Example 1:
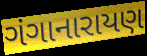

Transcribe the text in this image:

ગંગાનારાયણ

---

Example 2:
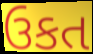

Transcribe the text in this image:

ઉકત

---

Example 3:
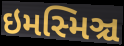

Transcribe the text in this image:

ઇમસ્મિઞ્ચ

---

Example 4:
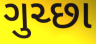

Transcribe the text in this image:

ગુચ્છા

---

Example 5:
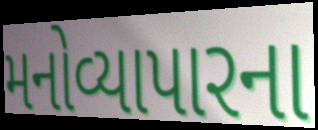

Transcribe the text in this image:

મનોવ્યાપારના